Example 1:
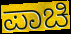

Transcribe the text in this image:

ಪಾಚಿ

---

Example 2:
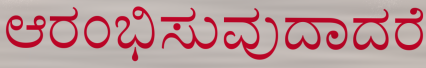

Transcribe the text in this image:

ಆರಂಭಿಸುವುದಾದರೆ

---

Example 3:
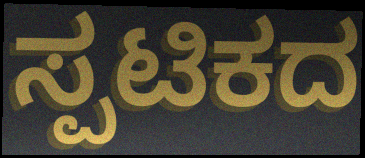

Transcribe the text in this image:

ಸ್ಪಟಿಕದ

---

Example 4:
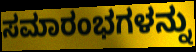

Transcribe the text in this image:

ಸಮಾರಂಭಗಳನ್ನು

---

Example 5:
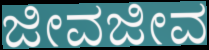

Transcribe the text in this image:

ಜೀವಜೀವ